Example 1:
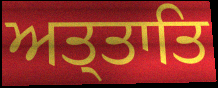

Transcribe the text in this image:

ਅਤ੍ਤਾਤਿ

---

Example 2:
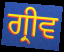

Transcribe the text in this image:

ਗ੍ਰੀਵ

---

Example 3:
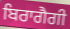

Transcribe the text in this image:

ਬਿਰਾਗੈਗੀ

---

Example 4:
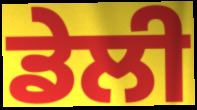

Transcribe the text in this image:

ਡੇਲੀ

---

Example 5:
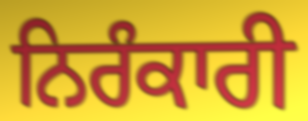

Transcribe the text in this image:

ਨਿਰੰਕਾਰੀ